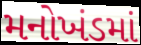
મનોખંડમાં